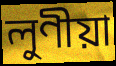
লুণীয়া